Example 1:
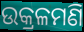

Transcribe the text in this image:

ଉକ୍ରଳମଣି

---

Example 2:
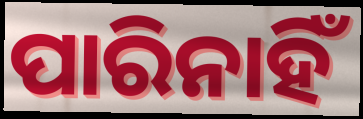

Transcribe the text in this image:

ପାରିନାହିଁ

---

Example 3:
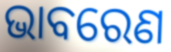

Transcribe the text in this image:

ଭାବରେଣ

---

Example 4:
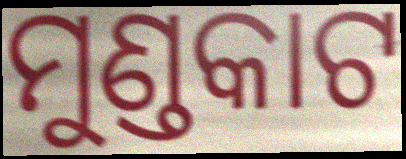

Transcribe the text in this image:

ମୁଣ୍ଡକାଟ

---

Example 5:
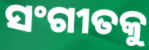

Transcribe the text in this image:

ସଂଗୀତକୁ